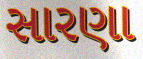
સારણા